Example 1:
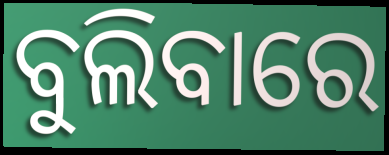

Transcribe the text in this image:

ବୁଲିବାରେ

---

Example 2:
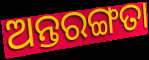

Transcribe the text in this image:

ଅନ୍ତରଙ୍ଗତା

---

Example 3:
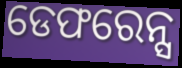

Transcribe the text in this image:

ଡେଫରେନ୍ସ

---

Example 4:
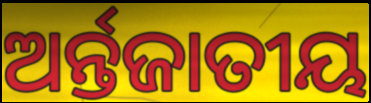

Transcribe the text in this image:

ଅର୍ନ୍ତଜାତୀୟ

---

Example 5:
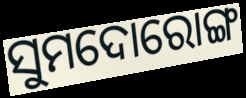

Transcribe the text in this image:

ସୁମଦୋରୋଙ୍ଗ